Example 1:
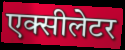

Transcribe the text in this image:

एक्सीलेटर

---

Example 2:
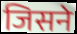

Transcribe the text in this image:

जिसने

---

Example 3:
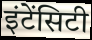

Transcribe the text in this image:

इंटेंसिटी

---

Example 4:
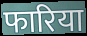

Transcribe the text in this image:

फारिया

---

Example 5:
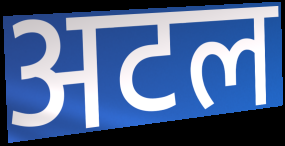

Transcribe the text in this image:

अटल